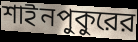
শাইনপুকুরের